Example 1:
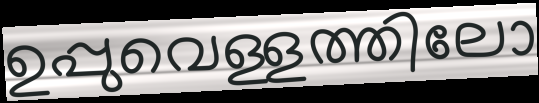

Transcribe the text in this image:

ഉപ്പുവെള്ളത്തിലോ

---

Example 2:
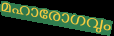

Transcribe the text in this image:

മഹാരോഗവും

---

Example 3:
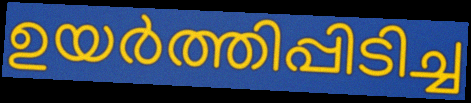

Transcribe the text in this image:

ഉയർത്തിപ്പിടിച്ച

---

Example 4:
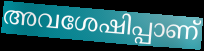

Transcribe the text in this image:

അവശേഷിപ്പാണ്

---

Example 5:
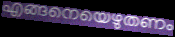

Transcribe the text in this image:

എങ്ങനെയെഴുതണം